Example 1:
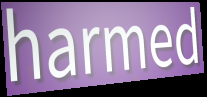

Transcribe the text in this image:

harmed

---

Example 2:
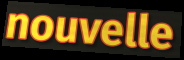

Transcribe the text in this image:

nouvelle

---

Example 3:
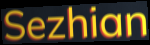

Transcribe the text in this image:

Sezhian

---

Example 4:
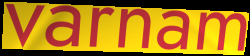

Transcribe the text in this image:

varnam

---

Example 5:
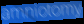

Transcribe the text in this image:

amniotomy